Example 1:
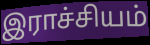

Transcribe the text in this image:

இராச்சியம்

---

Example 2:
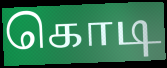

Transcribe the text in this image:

கொடி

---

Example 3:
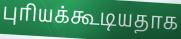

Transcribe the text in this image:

புரியக்கூடியதாக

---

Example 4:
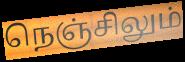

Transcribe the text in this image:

நெஞ்சிலும்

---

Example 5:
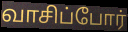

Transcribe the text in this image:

வாசிப்போர்